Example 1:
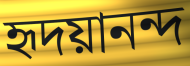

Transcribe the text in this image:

হৃদয়ানন্দ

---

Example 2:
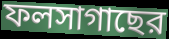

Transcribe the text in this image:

ফলসাগাছের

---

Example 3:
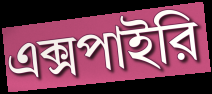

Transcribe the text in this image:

এক্সপাইরি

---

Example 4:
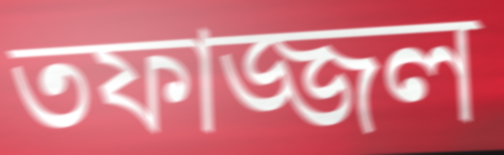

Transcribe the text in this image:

তফাজ্জল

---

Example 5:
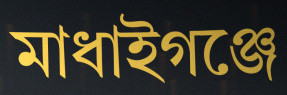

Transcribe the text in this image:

মাধাইগঞ্জে